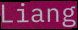
Liang